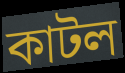
কাটল